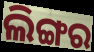
ଲିଙ୍ଗର